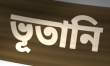
ভূতানি